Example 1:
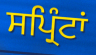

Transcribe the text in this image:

ਸਪ੍ਰਿੰਟਾਂ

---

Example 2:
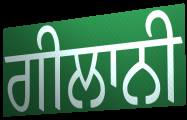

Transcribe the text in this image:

ਗੀਲਾਨੀ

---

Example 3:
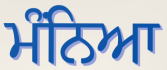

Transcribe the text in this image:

ਮੰਂਨਿਆ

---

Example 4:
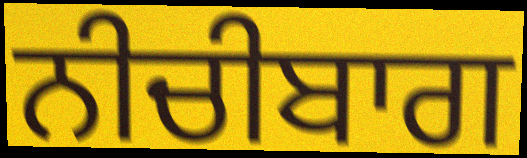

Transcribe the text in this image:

ਨੀਚੀਬਾਗ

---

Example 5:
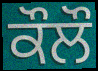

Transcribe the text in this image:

ਕੌਲੌ